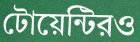
টোয়েন্টিরও